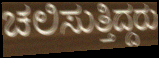
ಚಲಿಸುತ್ತಿದ್ದರು